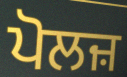
ਪੋਲਜ਼